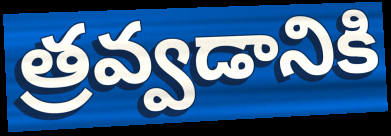
త్రవ్వడానికి